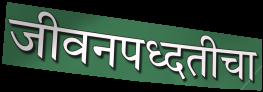
जीवनपध्दतीचा